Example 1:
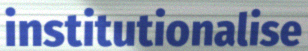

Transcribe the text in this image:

institutionalise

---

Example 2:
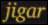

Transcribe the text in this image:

jigar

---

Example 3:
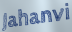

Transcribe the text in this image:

Jahanvi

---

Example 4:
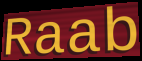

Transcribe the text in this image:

Raab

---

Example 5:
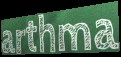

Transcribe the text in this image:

arthma